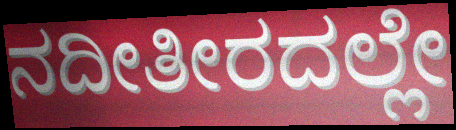
ನದೀತೀರದಲ್ಲೇ